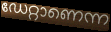
ഡേറ്റാണെന്ന